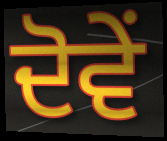
ਦੋਵੇਂ